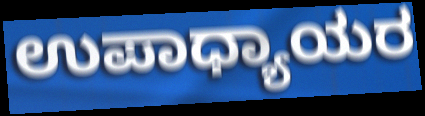
ಉಪಾಧ್ಯಾಯರ